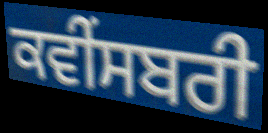
ਕਵੀਂਸਬਰੀ